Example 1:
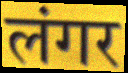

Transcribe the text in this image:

लंगर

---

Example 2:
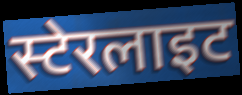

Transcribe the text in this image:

स्टेरलाइट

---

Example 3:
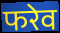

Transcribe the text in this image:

फरेव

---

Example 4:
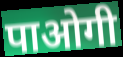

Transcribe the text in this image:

पाओगी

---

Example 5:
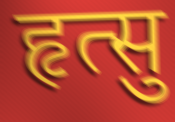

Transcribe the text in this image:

हृत्सु